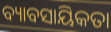
ବ୍ୟାବସାୟିକତା